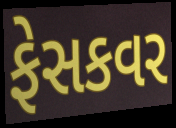
ફેસકવર